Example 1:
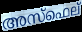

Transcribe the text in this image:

അസ്ഫെല്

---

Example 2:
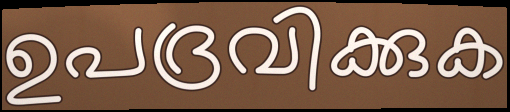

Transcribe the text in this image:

ഉപദ്രവിക്കുക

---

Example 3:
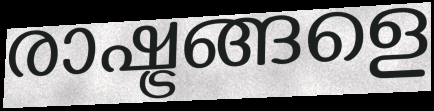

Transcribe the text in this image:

രാഷ്ട്രങ്ങളെ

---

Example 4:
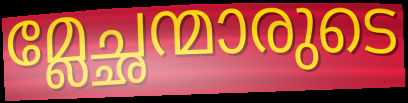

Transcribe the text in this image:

മ്ലേച്ഛന്മാരുടെ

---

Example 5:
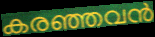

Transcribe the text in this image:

കരഞ്ഞവൻ